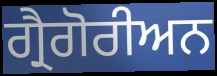
ਗ੍ਰੈਗੋਰੀਅਨ